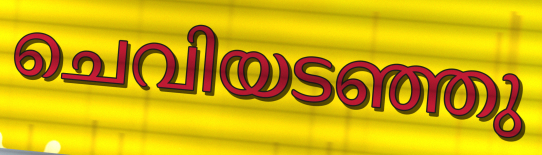
ചെവിയടഞ്ഞു